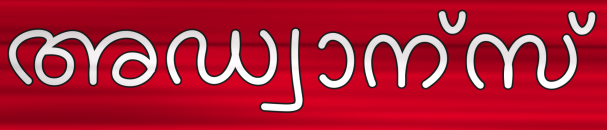
അഡ്വാന്സ്